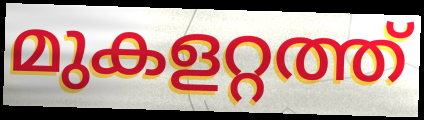
മുകളറ്റത്ത്